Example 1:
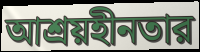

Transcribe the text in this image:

আশ্রয়হীনতার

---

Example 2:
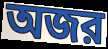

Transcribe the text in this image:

অজর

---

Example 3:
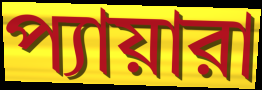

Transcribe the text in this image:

প্যায়ারা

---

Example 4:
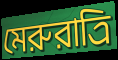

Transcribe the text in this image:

মেরুরাত্রি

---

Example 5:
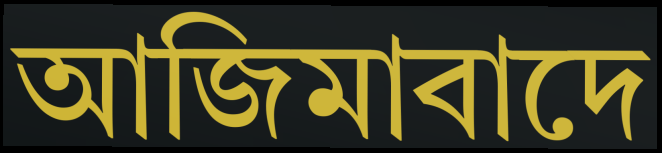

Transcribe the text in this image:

আজিমাবাদে